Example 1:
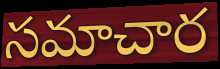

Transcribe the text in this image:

సమాచార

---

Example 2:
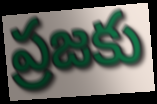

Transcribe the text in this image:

ప్రజకు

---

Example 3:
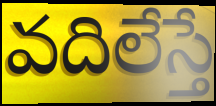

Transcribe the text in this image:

వదిలేస్తే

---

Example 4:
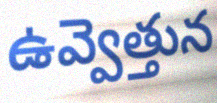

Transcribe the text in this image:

ఉవ్వెత్తున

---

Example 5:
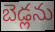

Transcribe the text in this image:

బెడ్లను